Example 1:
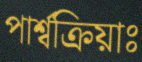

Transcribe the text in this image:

পাৰ্শ্বক্ৰিয়াঃ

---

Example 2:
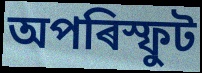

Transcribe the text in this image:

অপৰিস্ফুট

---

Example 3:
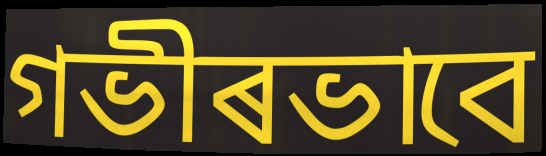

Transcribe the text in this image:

গভীৰভাবে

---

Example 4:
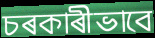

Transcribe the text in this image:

চৰকাৰীভাবে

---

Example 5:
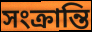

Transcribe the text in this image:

সংক্ৰান্তি